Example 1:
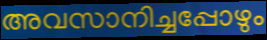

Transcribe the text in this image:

അവസാനിച്ചപ്പോഴും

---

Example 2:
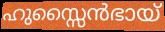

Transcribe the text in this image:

ഹുസ്സൈൻഭായ്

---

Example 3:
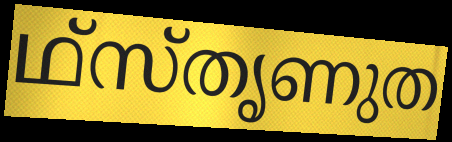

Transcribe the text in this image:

ഥ്സ്തൃണുത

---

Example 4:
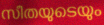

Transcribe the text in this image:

സീതയുടെയും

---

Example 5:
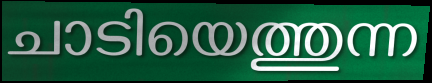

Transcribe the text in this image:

ചാടിയെത്തുന്ന